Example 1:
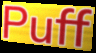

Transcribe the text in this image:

Puff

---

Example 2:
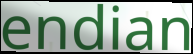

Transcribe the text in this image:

endian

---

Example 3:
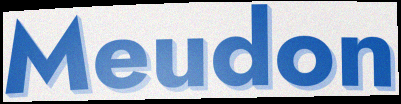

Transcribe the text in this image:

Meudon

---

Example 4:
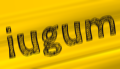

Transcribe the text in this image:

iugum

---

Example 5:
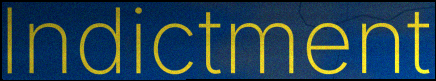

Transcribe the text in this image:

Indictment